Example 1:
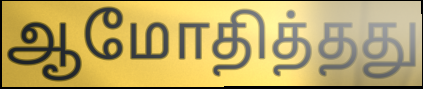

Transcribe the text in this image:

ஆமோதித்தது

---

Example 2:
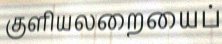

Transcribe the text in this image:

குளியலறையைப்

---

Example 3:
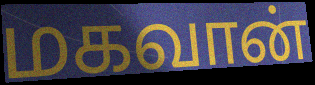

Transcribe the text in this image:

மகவான்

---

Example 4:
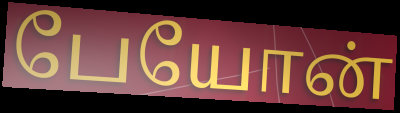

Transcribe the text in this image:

பேயோன்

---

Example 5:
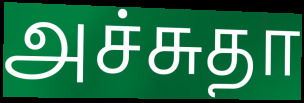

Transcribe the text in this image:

அச்சுதா